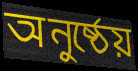
অনুষ্ঠেয়